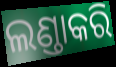
ଲଣ୍ଡାକରି